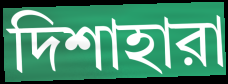
দিশাহারা